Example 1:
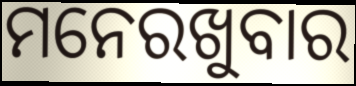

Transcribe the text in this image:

ମନେରଖୁବାର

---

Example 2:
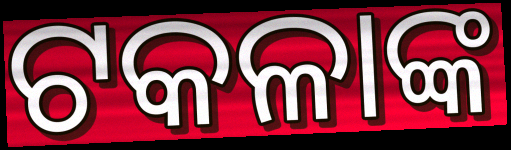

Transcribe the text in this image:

ଟକଳାଙ୍କ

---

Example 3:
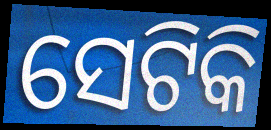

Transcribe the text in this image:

ସେଟିକି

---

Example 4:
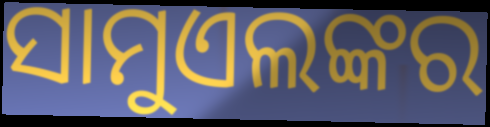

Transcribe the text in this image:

ସାମୁଏଲଙ୍କର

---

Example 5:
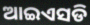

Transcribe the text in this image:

ଆଇଏସଡି